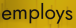
employs